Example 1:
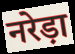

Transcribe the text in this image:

नरेड़ा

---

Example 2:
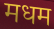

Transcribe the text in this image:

मधम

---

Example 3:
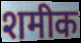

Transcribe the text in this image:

शमीक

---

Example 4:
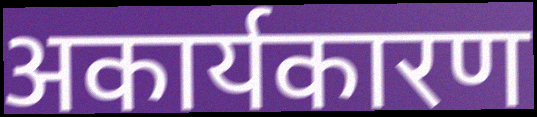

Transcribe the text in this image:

अकार्यकारण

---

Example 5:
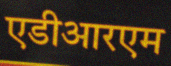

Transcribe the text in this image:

एडीआरएम